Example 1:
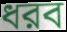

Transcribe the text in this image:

ধরব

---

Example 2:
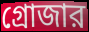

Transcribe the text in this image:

গ্রোজার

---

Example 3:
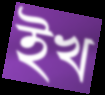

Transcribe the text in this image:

ইখ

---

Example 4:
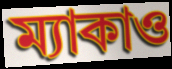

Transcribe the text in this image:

ম্যাকাও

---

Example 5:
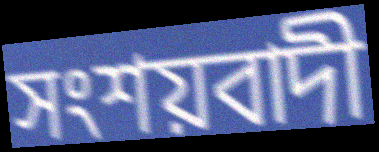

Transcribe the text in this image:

সংশয়বাদী